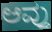
ಆವ್ತು